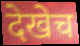
देखेच